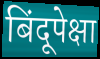
बिंदूपेक्षा